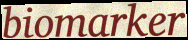
biomarker